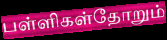
பள்ளிகள்தோறும்